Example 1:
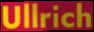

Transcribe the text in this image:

Ullrich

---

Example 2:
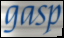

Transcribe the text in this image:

gasp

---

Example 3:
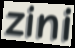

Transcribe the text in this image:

zini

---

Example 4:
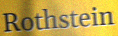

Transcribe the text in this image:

Rothstein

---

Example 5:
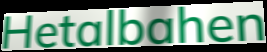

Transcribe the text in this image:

Hetalbahen